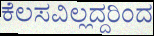
ಕೆಲಸವಿಲ್ಲದ್ದರಿಂದ